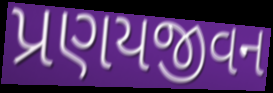
પ્રણયજીવન